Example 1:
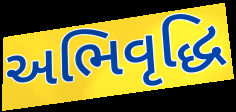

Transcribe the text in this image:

અભિવૃદ્ધિ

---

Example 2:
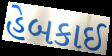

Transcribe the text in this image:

હેબકાઈ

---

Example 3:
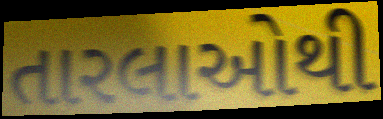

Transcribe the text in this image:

તારલાઓથી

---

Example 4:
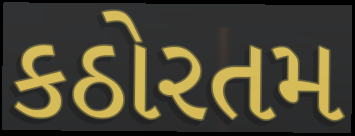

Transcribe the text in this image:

કઠોરતમ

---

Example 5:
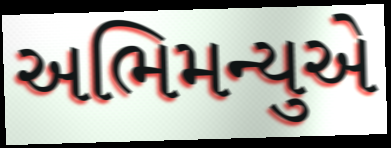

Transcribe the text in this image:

અભિમન્યુએ